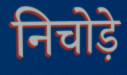
निचोड़े